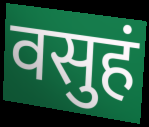
वसुहं